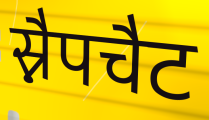
स्नैपचैट